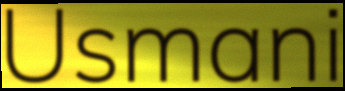
Usmani